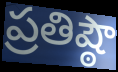
ప్రతిష్ఠౌ